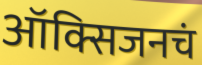
ऑक्सिजनचं